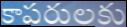
కాపరులకు